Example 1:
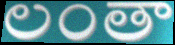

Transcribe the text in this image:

లంతా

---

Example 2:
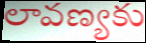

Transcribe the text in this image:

లావణ్యకు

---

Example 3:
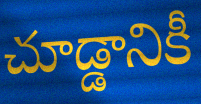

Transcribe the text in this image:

చూడ్డానికీ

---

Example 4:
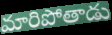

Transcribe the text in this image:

మారిపోతాడు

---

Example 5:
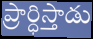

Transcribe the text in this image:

ప్రార్ధిస్తాడు